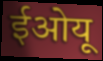
ईओयू